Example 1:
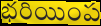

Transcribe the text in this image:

భరియింప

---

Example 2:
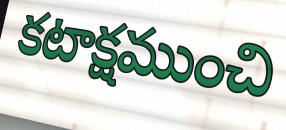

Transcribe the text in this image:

కటాక్షముంచి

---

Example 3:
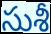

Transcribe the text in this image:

సుశీ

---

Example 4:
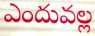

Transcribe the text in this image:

ఎందువల్ల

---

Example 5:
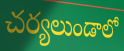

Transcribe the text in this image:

చర్యలుండాలో